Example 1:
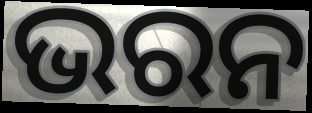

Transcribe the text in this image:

ଭରନ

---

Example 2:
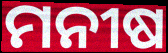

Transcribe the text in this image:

ମନୀଷ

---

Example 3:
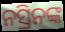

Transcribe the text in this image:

ନସ୍ରିନଙ୍କ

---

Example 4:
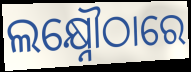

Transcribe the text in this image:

ଲକ୍ଷ୍ନୌଠାରେ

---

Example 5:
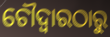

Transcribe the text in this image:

ଚୌଦ୍ୱାରଠାରୁ